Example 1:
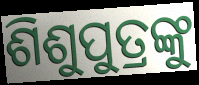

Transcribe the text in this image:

ଶିଶୁପୁତ୍ରଙ୍କୁ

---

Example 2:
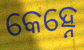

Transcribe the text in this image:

କେହ୍ନେ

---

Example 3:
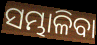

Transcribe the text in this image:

ସମ୍ଭାଳିବା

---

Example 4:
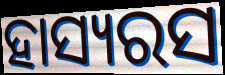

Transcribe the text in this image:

ହାସ୍ୟରସ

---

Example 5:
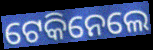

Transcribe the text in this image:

ଟେକିନେଲେ